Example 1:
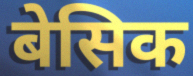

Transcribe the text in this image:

बेसिक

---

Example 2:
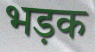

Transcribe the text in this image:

भड़क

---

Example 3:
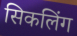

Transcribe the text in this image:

सिकलिंग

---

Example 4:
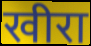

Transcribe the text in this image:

खीरा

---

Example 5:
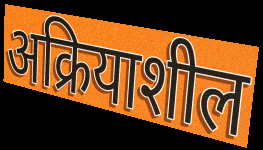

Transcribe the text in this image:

अक्रियाशील